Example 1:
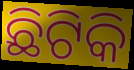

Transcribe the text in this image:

ଛିଟିକି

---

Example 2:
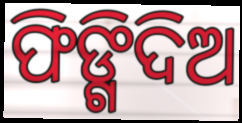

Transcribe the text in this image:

ଫିଙ୍ଗିଦିଅ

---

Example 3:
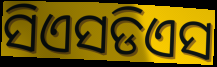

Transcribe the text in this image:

ସିଏସଡିଏସ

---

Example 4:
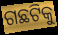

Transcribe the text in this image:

ଗଛଟିକୁ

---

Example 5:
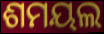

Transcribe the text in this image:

ଶମୟଲ